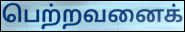
பெற்றவனைக்